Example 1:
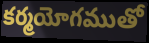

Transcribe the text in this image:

కర్మయోగముతో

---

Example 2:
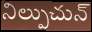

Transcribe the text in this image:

నిల్పుచున్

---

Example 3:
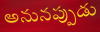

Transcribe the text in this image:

అనునప్పుడు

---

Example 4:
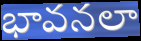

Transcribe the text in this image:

భావనలా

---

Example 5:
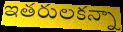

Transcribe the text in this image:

ఇతరులకన్నా